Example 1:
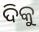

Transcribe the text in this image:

ଦିକୁ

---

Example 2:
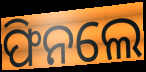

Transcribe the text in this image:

ଫିନଲେ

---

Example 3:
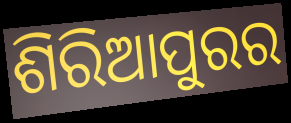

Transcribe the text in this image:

ଶିରିଆପୁରର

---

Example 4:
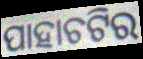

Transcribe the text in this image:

ପାହାଚଟିର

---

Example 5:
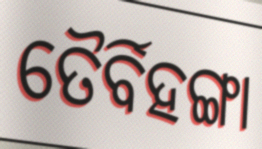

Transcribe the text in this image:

ତୈର୍ବିହଙ୍ଗା